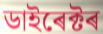
ডাইৰেক্টৰ